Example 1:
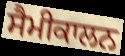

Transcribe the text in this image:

ਸੈਮੀਕਾਲਨ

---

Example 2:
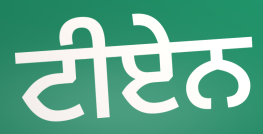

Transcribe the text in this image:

ਟੀਏਨ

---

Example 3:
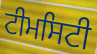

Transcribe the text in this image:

ਟੀਮਸਿਟੀ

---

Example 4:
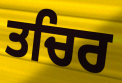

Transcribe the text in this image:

ਤਚਿਰ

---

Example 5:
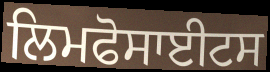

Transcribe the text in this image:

ਲਿਮਫੋਸਾਈਟਸ